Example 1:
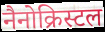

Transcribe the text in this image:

नैनोक्रिस्टल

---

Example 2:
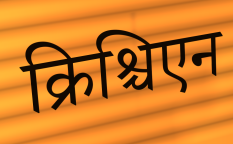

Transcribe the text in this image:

क्रिश्चिएन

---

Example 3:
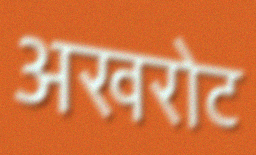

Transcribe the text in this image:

अखरोट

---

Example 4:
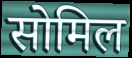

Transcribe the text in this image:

सोमिल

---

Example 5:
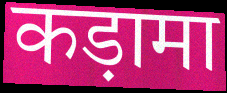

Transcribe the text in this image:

कड़ामा